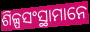
ଶିଳ୍ପସଂସ୍ଥାମାନେ